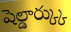
షెల్డార్క్కు